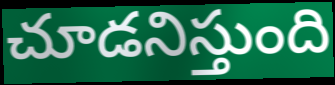
చూడనిస్తుంది